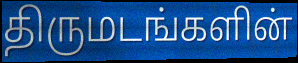
திருமடங்களின்